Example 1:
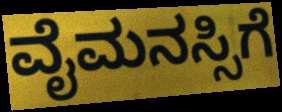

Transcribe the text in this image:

ವೈಮನಸ್ಸಿಗೆ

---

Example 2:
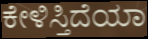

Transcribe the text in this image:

ಕೇಳಿಸ್ತಿದೆಯಾ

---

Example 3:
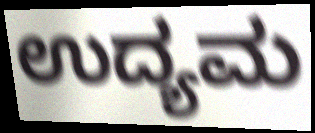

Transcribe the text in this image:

ಉದ್ಯಮ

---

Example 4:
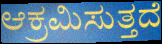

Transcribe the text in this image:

ಆಕ್ರಮಿಸುತ್ತದೆ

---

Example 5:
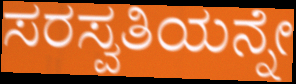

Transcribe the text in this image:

ಸರಸ್ವತಿಯನ್ನೇ